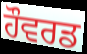
ਹੌਵਰਡ